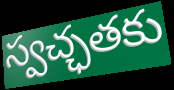
స్వచ్ఛతకు